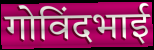
गोविंदभाई